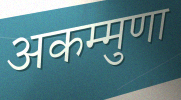
अकम्मुणा